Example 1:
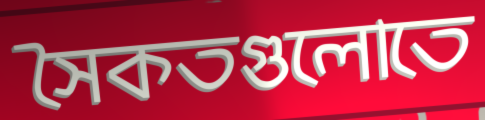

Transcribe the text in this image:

সৈকতগুলোতে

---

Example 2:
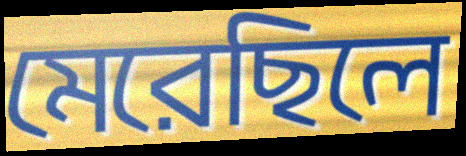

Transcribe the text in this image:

মেরেছিলে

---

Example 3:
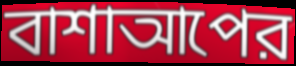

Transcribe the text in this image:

বাশাআপের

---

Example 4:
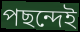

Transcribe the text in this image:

পছন্দেই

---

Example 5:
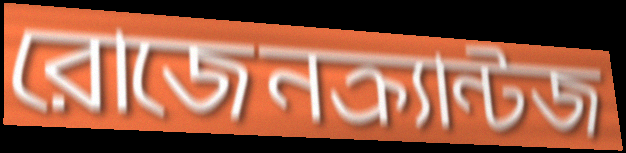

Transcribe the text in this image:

রোজেনক্র্যান্টজ